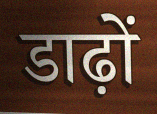
डाढ़ों